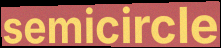
semicircle